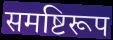
समष्टिरूप